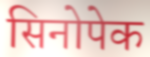
सिनोपेक